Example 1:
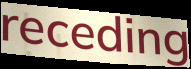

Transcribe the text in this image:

receding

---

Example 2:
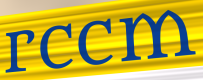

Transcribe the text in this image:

rccm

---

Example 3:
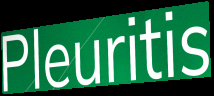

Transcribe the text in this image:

Pleuritis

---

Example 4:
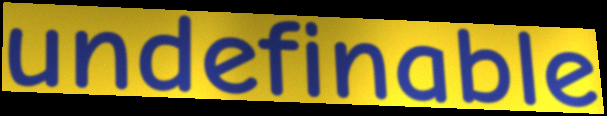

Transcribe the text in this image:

undefinable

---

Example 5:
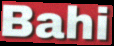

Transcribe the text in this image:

Bahi